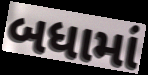
બધામાં